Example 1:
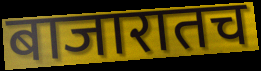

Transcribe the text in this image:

बाजारातच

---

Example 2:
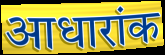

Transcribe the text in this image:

आधारांक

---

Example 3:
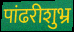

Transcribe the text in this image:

पांढरीशुभ्र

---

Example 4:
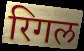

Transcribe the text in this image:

रिगल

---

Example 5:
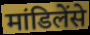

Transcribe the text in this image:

मांडिलेंसे